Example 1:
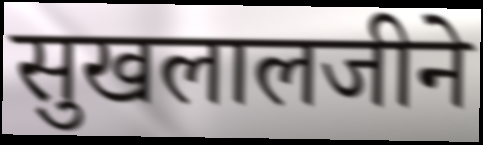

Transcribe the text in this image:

सुखलालजीने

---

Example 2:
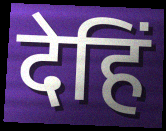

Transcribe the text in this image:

देहिं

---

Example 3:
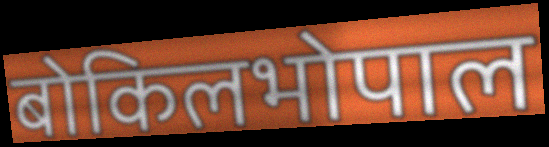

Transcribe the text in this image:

बोकिलभोपाल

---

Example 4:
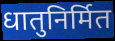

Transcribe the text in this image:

धातुनिर्मित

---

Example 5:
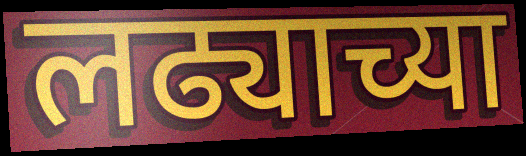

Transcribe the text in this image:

लढ्याच्या